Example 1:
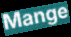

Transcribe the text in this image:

Mange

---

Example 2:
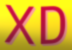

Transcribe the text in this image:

XD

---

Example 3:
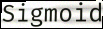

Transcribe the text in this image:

Sigmoid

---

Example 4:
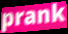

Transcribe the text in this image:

prank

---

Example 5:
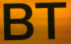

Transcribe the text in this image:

BT